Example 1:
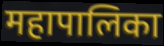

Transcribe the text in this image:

महापालिका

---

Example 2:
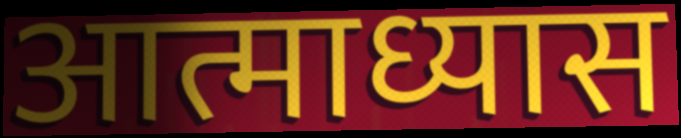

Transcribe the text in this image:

आत्माध्यास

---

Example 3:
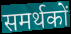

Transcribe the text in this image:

समर्थकों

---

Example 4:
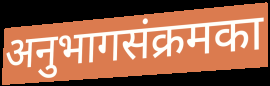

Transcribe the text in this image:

अनुभागसंक्रमका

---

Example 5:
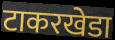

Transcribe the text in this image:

टाकरखेडा